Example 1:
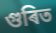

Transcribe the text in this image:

গুৰিত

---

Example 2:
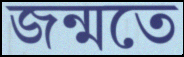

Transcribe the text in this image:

জন্মতে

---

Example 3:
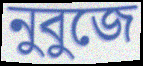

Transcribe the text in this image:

নুবুজে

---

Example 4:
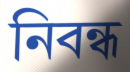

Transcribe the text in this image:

নিবন্ধ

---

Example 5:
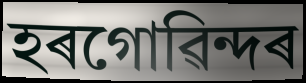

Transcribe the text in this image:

হৰগোৱিন্দৰ